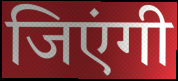
जिएंगी